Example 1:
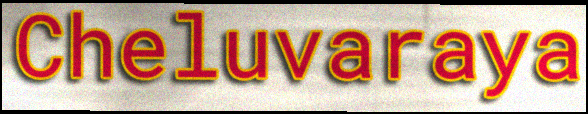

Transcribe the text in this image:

Cheluvaraya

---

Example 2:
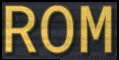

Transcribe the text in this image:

ROM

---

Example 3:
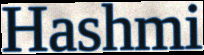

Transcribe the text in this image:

Hashmi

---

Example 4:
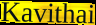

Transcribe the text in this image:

Kavithai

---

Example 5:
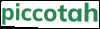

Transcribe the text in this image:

piccotah